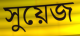
সুয়েজ